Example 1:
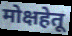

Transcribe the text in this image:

मोक्षहेतू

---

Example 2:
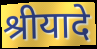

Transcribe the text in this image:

श्रीयादे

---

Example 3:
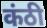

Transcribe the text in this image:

कंठी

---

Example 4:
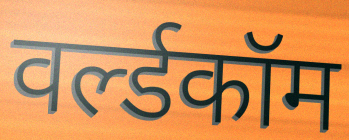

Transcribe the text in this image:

वर्ल्डकॉम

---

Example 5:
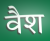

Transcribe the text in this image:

वैश